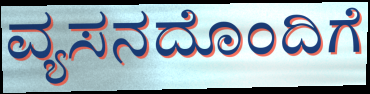
ವ್ಯಸನದೊಂದಿಗೆ